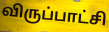
விருப்பாட்சி